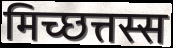
मिच्छत्तस्स